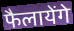
फैलायेंगे